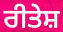
ਰੀਤੇਸ਼